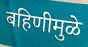
बहिणीमुळे